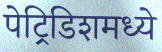
पेट्रिडिशमध्ये